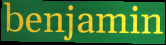
benjamin